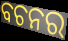
ବଚନର